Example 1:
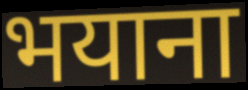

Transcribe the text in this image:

भयाना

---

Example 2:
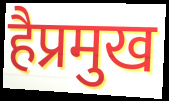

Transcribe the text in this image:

हैप्रमुख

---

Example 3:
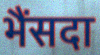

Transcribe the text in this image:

भैंसदा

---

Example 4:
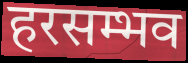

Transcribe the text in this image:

हरसम्भव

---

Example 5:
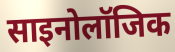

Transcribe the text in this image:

साइनोलॉजिक